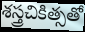
శస్త్రచికిత్సతో